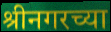
श्रीनगरच्या